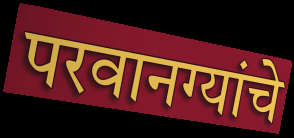
परवानग्यांचे